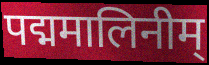
पद्ममालिनीम्